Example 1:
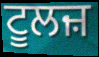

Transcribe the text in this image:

ਟੂਲਜ਼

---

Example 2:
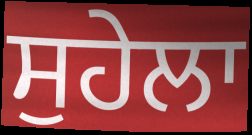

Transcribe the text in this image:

ਸੁਹੇਲਾ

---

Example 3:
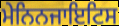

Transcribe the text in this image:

ਮੇਨਿਨਜਾਇਟਿਸ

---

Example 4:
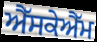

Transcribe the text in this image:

ਐੱਸਕੇਐੱਮ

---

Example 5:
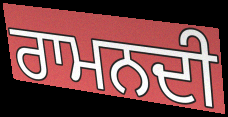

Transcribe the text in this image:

ਰਾਮਨਦੀ